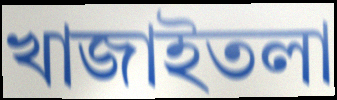
খাজাইতলা